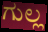
ಗುಲ್ಲ